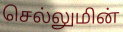
செல்லுமின்